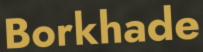
Borkhade